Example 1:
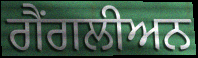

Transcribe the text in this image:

ਗੈਂਗਲੀਅਨ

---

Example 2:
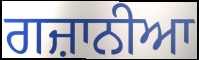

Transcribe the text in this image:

ਗਜ਼ਾਨੀਆ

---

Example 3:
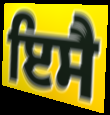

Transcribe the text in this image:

ਇਸੈ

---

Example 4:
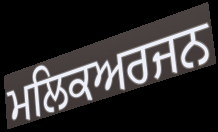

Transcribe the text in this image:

ਮਲਿਕਅਰਜਨ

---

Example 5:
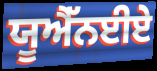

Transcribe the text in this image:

ਯੂਐੱਨਈਏ